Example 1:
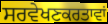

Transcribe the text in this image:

ਸਰਵੇਖਣਕਰਤਾਵਾਂ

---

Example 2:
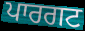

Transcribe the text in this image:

ਪਾਰਗਟ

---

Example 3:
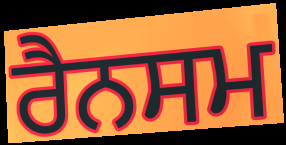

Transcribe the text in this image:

ਰੈਨਸਮ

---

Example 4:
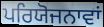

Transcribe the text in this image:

ਪਰਿਯੋਜਨਾਵਾਂ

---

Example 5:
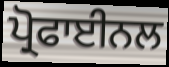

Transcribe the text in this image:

ਪ੍ਰੋਫਾਈਨਲ